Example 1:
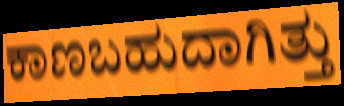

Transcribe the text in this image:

ಕಾಣಬಹುದಾಗಿತ್ತು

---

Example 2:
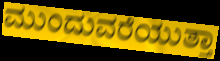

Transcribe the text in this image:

ಮುಂದುವರೆಯುತ್ತಾ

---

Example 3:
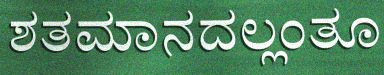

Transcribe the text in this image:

ಶತಮಾನದಲ್ಲಂತೂ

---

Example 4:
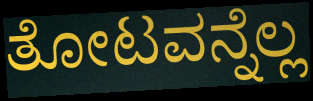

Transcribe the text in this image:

ತೋಟವನ್ನೆಲ್ಲ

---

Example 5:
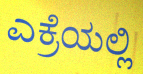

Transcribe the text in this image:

ಎಕ್ರೆಯಲ್ಲಿ